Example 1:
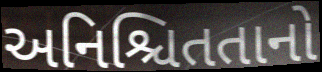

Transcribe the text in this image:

અનિશ્ચિતતાનો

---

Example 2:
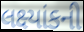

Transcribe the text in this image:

લક્ષ્યાંકની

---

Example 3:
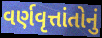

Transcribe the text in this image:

વર્ણવૃત્તાંતોનું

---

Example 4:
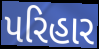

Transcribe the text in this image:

પરિહાર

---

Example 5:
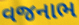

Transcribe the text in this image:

વજનાભ